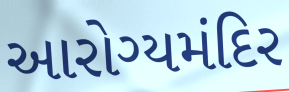
આરોગ્યમંદિર